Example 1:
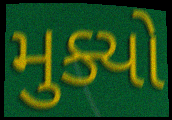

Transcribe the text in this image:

મુક્યો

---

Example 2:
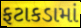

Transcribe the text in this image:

ફટાકડામાં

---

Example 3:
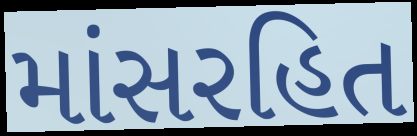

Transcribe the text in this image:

માંસરહિત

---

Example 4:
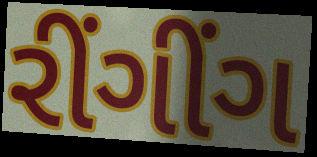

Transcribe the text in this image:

રીંગીંગ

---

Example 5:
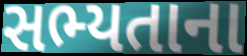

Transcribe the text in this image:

સભ્યતાના